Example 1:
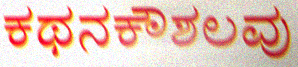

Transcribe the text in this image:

ಕಥನಕೌಶಲವು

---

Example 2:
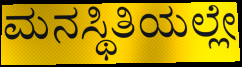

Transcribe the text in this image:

ಮನಸ್ಥಿತಿಯಲ್ಲೇ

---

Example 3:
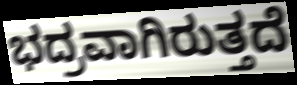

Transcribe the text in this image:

ಭದ್ರವಾಗಿರುತ್ತದೆ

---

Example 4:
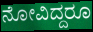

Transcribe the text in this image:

ನೋವಿದ್ದರೂ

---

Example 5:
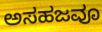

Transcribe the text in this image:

ಅಸಹಜವೂ